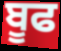
ਬੂਫ